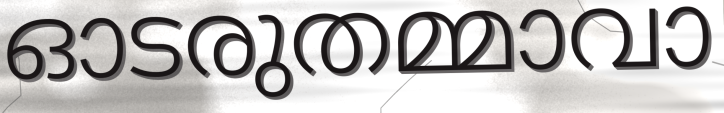
ഓടരുതമ്മാവാ